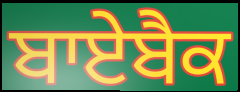
ਬਾਏਬੈਕ